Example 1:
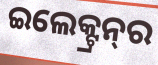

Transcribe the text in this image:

ଇଲେକ୍ଟ୍ରନ୍‌ର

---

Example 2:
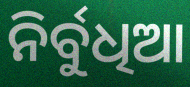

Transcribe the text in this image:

ନିର୍ବୁଧିଆ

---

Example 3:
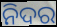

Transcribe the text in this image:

ନିଦର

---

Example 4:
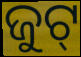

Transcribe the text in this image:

ଜୁଟ୍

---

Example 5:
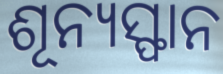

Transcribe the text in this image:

ଶୂନ୍ୟସ୍ଫାନ